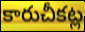
కారుచీకట్ల